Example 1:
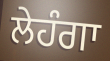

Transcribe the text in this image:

ਲੇਹੰਗਾ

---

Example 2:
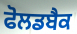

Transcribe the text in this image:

ਫੋਲਡਬੈਕ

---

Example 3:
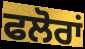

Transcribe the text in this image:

ਫਲੋਰਾਂ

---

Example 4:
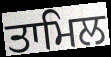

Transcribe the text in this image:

ਤਾਮਿਲ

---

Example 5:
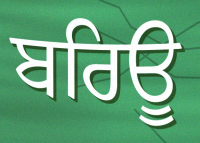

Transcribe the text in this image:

ਬਰਿਊ